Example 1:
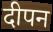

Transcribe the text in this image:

दीपन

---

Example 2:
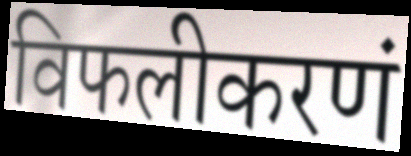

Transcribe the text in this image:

विफलीकरणं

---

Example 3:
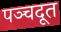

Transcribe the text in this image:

पञ्चदूत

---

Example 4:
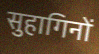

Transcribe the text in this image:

सुहागिनों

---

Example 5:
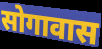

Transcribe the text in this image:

सोगावास